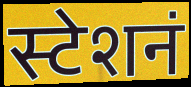
स्टेशनं